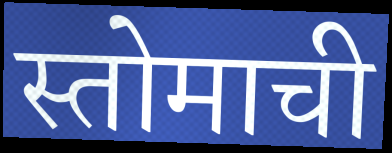
स्तोमाची